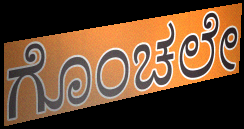
ಗೊಂಚಲೇ